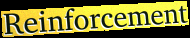
Reinforcement